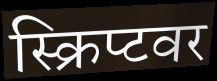
स्क्रिप्टवर